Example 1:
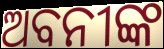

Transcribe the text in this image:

ଅବନୀଙ୍କ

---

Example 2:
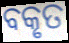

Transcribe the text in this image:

ବକୃତ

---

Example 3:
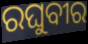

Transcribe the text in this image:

ରଘୁବୀର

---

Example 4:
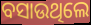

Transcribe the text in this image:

ବସାଉଥିଲେ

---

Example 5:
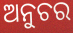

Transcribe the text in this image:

ଅନୁଚର